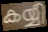
കയ്യീ